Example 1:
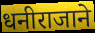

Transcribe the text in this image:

धनीराजाने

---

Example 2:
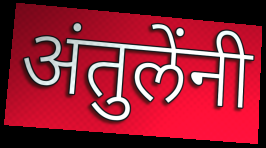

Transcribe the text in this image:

अंतुलेंनी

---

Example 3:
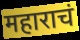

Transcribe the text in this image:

महाराचं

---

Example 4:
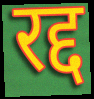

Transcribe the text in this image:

रद्द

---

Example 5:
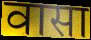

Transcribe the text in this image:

वासा